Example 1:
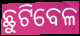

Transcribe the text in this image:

ଛୁଟିବେଳ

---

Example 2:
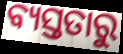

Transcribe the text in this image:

ବ୍ୟସ୍ତତାରୁ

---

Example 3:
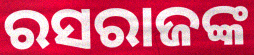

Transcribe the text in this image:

ରସରାଜଙ୍କ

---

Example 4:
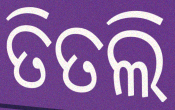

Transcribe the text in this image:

ତିତଲି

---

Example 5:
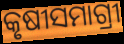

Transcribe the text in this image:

କୃଷୀସମାଗ୍ରୀ